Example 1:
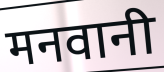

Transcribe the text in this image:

मनवानी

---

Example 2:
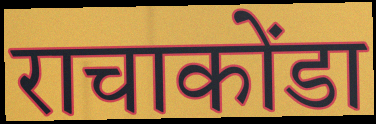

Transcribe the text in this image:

राचाकोंडा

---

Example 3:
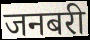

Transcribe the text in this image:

जनबरी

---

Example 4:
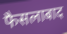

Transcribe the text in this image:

फैसलाबाद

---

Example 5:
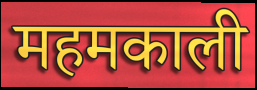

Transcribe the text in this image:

महमकाली